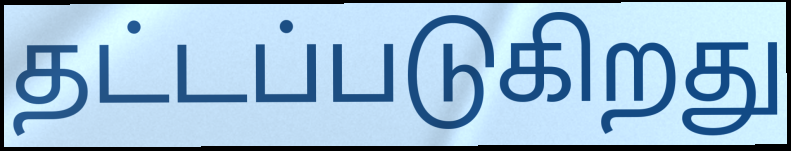
தட்டப்படுகிறது